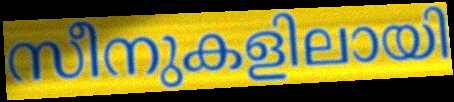
സീനുകളിലായി